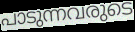
പാടുന്നവരുടെ